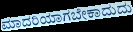
ಮಾದರಿಯಾಗಬೇಕಾದುದು